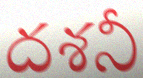
దశనీ